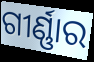
ଗୀର୍ଣ୍ଣାର